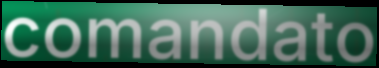
comandato